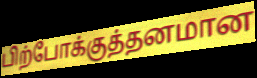
பிற்போக்குத்தனமான